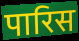
पारिस